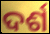
ଦର୍ଶ